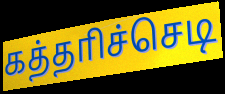
கத்தரிச்செடி